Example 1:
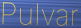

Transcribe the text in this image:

Pulvar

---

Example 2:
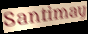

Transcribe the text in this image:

Santimay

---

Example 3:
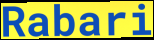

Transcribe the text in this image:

Rabari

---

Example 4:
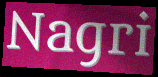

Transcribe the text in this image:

Nagri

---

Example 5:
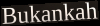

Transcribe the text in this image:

Bukankah